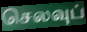
செலவுப்